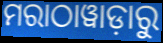
ମରାଠାୱାଡ଼ାରୁ